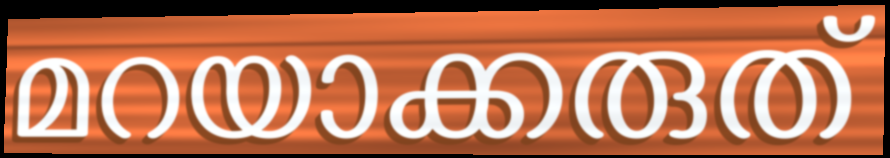
മറയാക്കരുത്